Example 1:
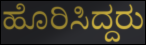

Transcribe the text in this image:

ಹೊರಿಸಿದ್ದರು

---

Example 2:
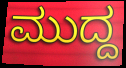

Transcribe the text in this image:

ಮುದ್ದ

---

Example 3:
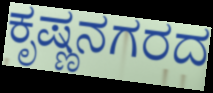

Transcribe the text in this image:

ಕೃಷ್ಣನಗರದ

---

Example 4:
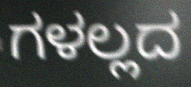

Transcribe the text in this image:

ಗಳಲ್ಲದ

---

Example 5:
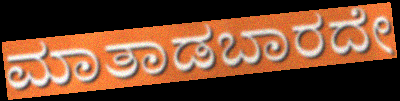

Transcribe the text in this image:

ಮಾತಾಡಬಾರದೇ